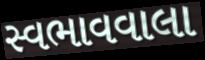
સ્વભાવવાલા